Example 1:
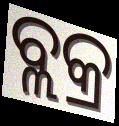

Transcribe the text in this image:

ବ୍ଲକ୍ର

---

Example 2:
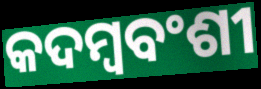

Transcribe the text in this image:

କଦମ୍ବବଂଶୀ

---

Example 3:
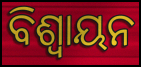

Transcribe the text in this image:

ବିଶ୍ୱାୟନ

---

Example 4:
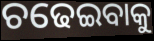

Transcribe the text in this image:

ଚଢେଇବାକୁ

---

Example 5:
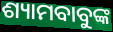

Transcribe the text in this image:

ଶ୍ୟାମବାବୁଙ୍କ